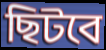
ছিটবে